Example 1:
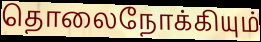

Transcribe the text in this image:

தொலைநோக்கியும்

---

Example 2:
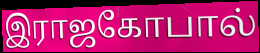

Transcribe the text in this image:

இராஜகோபால்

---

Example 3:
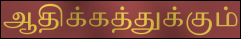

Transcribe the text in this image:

ஆதிக்கத்துக்கும்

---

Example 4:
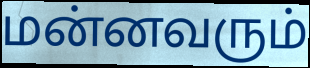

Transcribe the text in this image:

மன்னவரும்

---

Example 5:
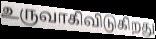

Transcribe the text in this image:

உருவாகிவிடுகிறது